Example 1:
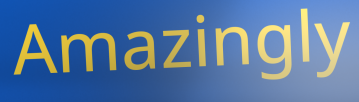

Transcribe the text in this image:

Amazingly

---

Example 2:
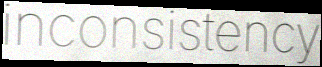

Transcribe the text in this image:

inconsistency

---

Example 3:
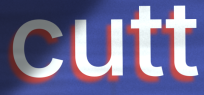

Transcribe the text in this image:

cutt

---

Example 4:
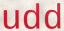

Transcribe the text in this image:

udd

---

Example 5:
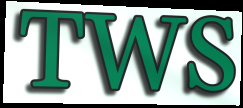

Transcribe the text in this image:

TWS